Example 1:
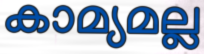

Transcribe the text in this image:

കാമ്യമല്ല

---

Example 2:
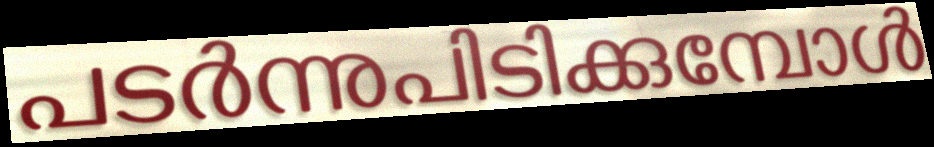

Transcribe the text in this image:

പടർന്നുപിടിക്കുമ്പോൾ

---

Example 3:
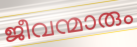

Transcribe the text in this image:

ജീവന്മാരും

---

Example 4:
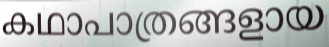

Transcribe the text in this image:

കഥാപാത്രങ്ങളായ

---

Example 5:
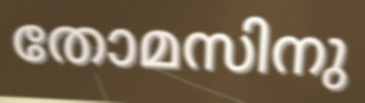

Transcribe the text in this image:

തോമസിനു